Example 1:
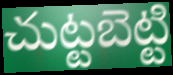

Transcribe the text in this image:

చుట్టబెట్టి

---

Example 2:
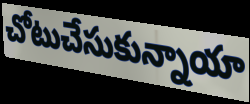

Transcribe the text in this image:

చోటుచేసుకున్నాయా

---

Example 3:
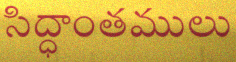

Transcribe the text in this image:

సిద్ధాంతములు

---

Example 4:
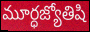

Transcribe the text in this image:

మూర్ధజ్యోతిషి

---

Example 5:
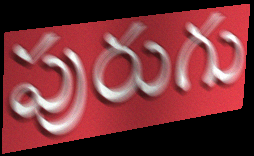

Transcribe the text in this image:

పురుగు